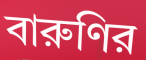
বারুণির